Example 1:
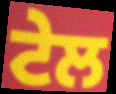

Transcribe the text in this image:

ਟੇਲ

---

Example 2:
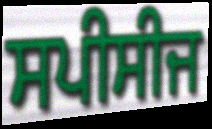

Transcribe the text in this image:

ਸਪੀਸੀਜ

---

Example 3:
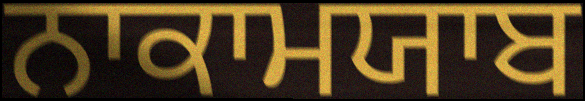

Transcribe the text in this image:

ਨਾਕਾਮਯਾਬ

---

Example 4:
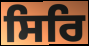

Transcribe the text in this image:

ਸਿਰਿ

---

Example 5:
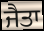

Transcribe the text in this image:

ਜੈਤਾ